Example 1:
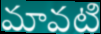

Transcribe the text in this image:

మావటి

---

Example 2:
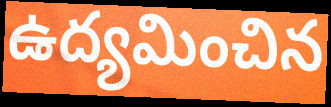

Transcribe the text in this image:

ఉద్యమించిన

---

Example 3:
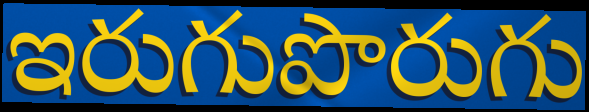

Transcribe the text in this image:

ఇరుగుపొరుగు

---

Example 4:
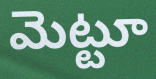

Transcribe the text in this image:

మెట్టూ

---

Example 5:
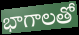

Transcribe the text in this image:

భాగాలతో